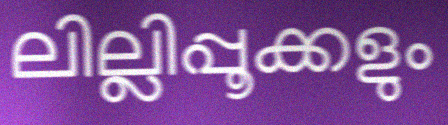
ലില്ലിപ്പൂക്കളും